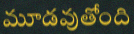
మూడవుతోంది